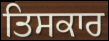
ਤਿਸਕਾਰ